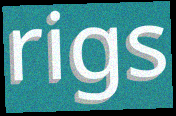
rigs